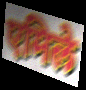
एमिले